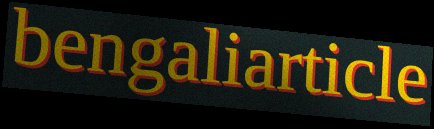
bengaliarticle